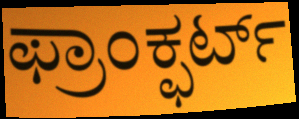
ಫ್ರಾಂಕ್ಫರ್ಟ್